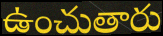
ఉంచుతారు